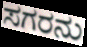
ಸಗರನು